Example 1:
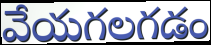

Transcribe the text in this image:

వేయగలగడం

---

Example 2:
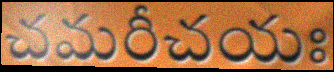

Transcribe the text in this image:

చమరీచయః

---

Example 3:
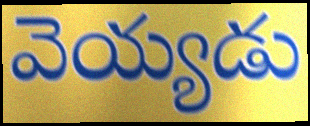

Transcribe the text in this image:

వెయ్యడు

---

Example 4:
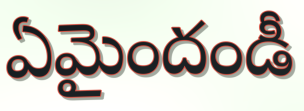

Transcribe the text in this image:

ఏమైందండీ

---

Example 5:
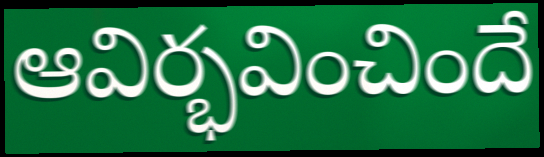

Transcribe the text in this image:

ఆవిర్భవించిందే